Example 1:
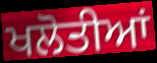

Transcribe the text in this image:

ਖਲੋਤੀਆਂ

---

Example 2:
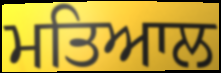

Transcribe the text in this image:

ਮਤਿਆਲ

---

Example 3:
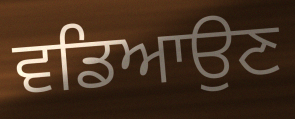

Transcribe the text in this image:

ਵਡਿਆਉਣ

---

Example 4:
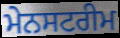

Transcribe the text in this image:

ਮੇਨਸਟਰੀਮ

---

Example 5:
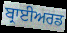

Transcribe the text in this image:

ਬ੍ਰਾਈਅਰਡ